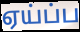
ஏய்ப்ப